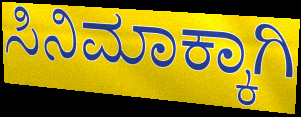
ಸಿನಿಮಾಕ್ಕಾಗಿ